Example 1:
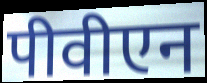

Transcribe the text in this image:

पीवीएन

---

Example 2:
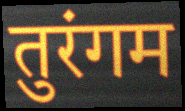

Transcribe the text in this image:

तुरंगम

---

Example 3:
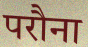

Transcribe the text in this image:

परौना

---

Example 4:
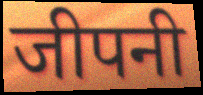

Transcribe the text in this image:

जीपनी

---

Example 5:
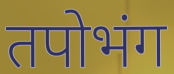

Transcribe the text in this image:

तपोभंग